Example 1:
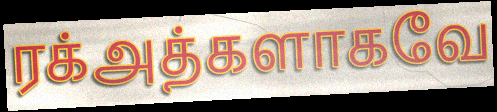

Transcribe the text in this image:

ரக்அத்களாகவே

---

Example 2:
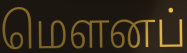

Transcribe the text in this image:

மெளனப்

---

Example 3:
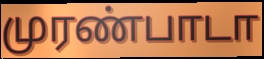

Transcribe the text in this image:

முரண்பாடா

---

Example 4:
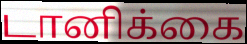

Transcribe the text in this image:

டானிக்கை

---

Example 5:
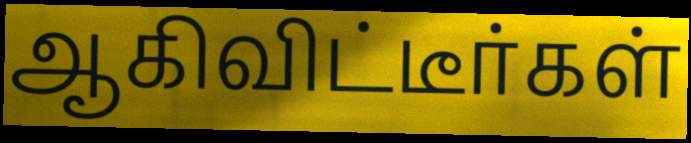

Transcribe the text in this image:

ஆகிவிட்டீர்கள்